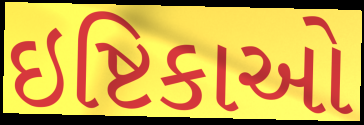
ઇષ્ટિકાઓ